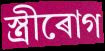
স্ত্ৰীৰোগ